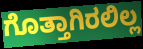
ಗೊತ್ತಾಗಿರಲಿಲ್ಲ